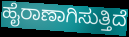
ಹೈರಾಣಾಗಿಸುತ್ತಿದೆ